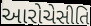
આરોચેસીતિ